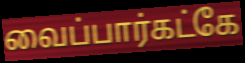
வைப்பார்கட்கே